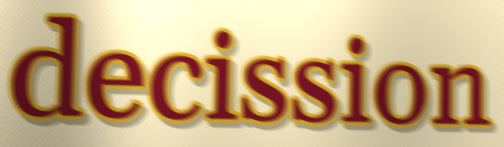
decission